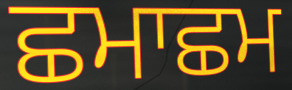
ਛਮਾਛਮ